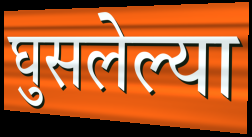
घुसलेल्या